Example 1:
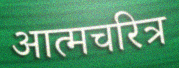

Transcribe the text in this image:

आत्मचरित्र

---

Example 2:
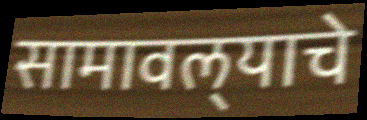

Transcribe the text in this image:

सामावल्याचे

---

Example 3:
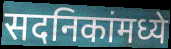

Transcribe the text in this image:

सदनिकांमध्ये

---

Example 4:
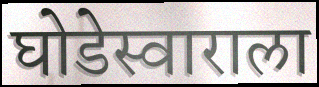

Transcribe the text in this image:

घोडेस्वाराला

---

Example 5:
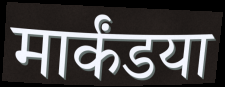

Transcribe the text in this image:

मार्कंडया